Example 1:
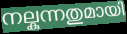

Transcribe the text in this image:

നല്കുന്നതുമായി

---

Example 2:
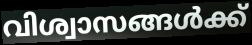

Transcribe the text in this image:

വിശ്വാസങ്ങൾക്ക്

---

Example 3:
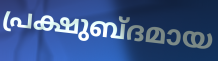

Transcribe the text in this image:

പ്രക്ഷുബ്ദമായ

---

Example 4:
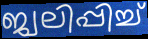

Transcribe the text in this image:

ജ്വലിപ്പിച്ച്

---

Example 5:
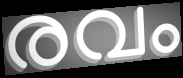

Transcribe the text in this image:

രവം